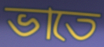
ভাতে